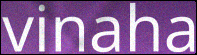
vinaha